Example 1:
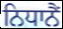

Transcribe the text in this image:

ਨਿਧਾਨੈਂ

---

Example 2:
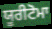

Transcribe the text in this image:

ਯੂਰੀਟੋਮਾ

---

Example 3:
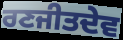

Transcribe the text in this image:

ਰਣਜੀਤਦੇਵ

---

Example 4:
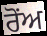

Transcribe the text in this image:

ਰੋਂਅ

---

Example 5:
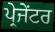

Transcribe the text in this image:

ਪ੍ਰੇਜੇਂਟਰ